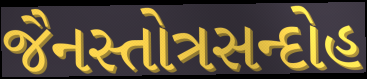
જૈનસ્તોત્રસન્દોહ